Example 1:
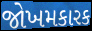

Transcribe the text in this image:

જોખમકારક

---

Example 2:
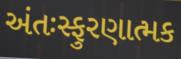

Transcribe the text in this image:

અંતઃસ્ફુરણાત્મક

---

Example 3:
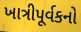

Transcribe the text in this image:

ખાત્રીપૂર્વકનો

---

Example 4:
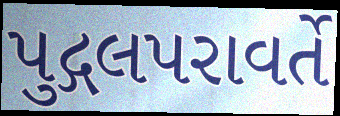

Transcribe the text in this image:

પુદ્ગલપરાવર્તે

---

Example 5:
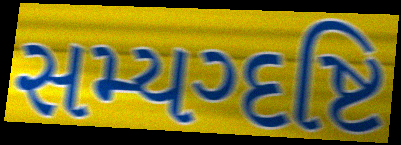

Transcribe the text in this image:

સમ્યગ્દષ્ટિ